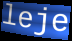
leje